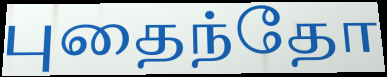
புதைந்தோ